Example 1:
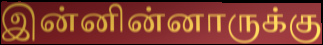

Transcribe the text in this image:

இன்னின்னாருக்கு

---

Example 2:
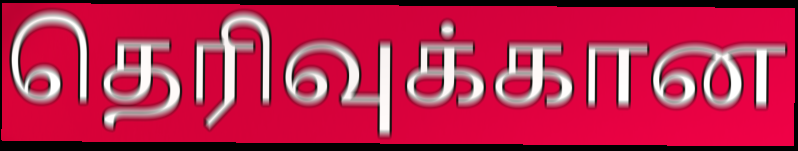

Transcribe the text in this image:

தெரிவுக்கான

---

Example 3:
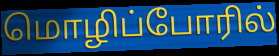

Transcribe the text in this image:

மொழிப்போரில்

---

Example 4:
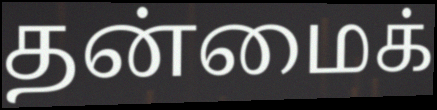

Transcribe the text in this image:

தன்மைக்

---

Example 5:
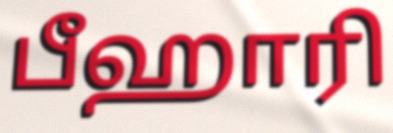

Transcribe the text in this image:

பீஹாரி